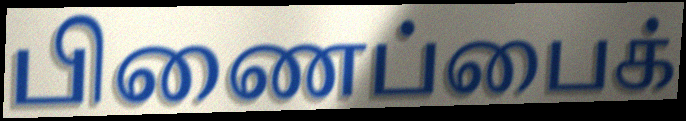
பிணைப்பைக்